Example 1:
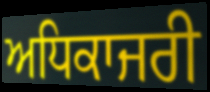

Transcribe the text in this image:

ਅਧਿਕਾਜਰੀ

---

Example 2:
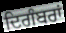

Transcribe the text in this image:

ਦਿਗੰਬਰਾਂ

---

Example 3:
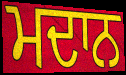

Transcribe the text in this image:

ਮਦਾਨ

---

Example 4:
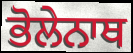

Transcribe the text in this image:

ਭੋਲੇਨਾਥ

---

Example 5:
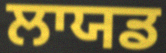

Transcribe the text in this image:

ਲਾਯਡ